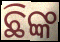
ଛିଙ୍କ